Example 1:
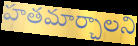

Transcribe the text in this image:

హతమార్చాలని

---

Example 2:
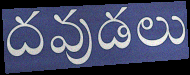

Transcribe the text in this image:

దవుడలు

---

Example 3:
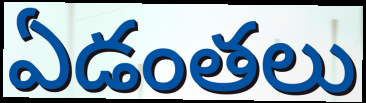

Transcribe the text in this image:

ఏడంతలు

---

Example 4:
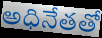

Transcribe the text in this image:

అధినేతతో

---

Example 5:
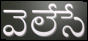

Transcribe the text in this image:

వెలేసే